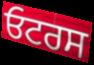
ਓਟਰਸ